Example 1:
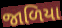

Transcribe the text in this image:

જાળિયા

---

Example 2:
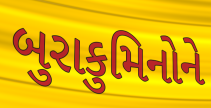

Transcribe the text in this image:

બુરાકુમિનોને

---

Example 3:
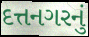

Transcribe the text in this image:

દત્તનગરનું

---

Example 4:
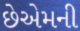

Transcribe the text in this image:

છેએમની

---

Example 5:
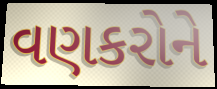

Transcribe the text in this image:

વણકરોને